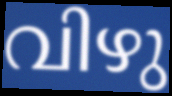
വിഴു